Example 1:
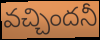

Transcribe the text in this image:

వచ్చిందనీ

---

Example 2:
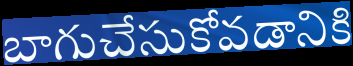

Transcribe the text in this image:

బాగుచేసుకోవడానికి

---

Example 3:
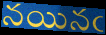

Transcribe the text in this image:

నయినఁ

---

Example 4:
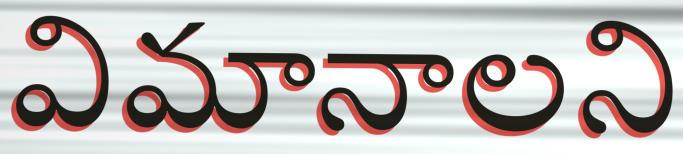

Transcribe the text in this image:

విమానాలని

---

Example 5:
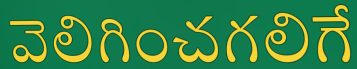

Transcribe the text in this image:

వెలిగించగలిగే